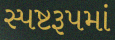
સ્પષ્ટરૂપમાં